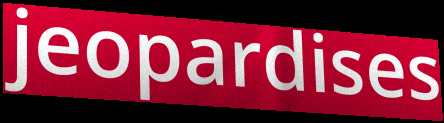
jeopardises